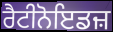
ਰੈਟੀਨੋਇਡਜ਼